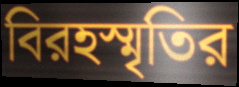
বিরহস্মৃতির